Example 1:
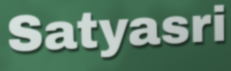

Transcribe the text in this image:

Satyasri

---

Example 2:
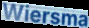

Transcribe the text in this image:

Wiersma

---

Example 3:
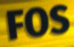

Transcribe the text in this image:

FOS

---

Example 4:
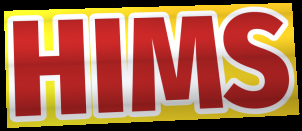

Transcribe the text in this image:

HIMS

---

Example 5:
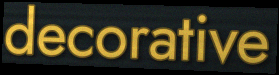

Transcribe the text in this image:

decorative